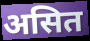
असित